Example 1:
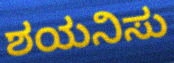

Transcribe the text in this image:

ಶಯನಿಸು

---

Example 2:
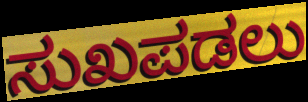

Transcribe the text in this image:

ಸುಖಪಡಲು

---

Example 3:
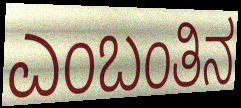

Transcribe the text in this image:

ಎಂಬಂತಿನ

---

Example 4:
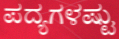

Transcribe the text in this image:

ಪದ್ಯಗಳಷ್ಟು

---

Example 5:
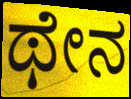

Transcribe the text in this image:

ಥೇನ